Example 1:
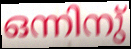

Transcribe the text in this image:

ഒന്നിനു്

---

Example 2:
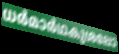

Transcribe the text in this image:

ധർമാർഥകുശലോ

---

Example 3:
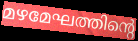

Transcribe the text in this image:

മഴമേഘത്തിന്റെ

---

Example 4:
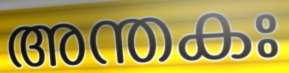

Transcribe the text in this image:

അന്തകഃ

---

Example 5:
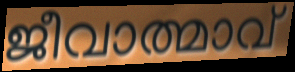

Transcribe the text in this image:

ജീവാത്മാവ്